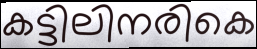
കട്ടിലിനരികെ